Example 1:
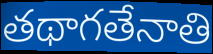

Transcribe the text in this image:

తథాగతేనాతి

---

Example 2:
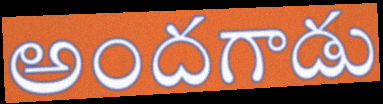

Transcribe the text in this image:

అందగాడు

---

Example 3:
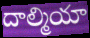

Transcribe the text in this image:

దాల్మియా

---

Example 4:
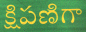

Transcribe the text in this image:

క్షిపణిగా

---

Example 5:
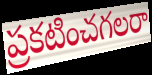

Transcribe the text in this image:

ప్రకటించగలరా